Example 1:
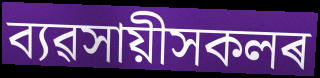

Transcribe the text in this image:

ব্যৱসায়ীসকলৰ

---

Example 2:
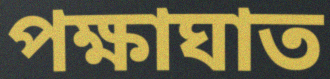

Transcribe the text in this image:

পক্ষাঘাত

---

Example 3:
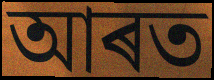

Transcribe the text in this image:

আৰত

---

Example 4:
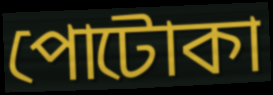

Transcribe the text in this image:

পোটোকা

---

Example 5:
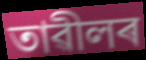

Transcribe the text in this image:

তাৱীলৰ